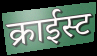
क्राईस्ट